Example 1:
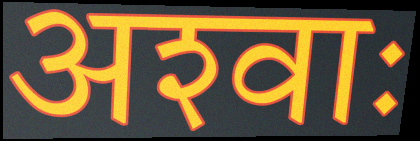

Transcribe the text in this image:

अश्वाः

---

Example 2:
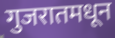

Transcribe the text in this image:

गुजरातमधून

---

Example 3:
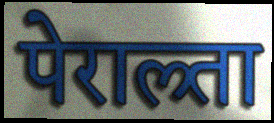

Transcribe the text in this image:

पेराल्ता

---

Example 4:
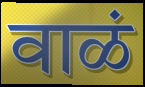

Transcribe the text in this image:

वाळं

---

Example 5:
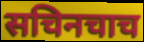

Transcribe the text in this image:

सचिनचाच